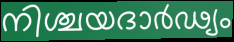
നിശ്ചയദാർഢ്യം